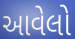
આવેલો